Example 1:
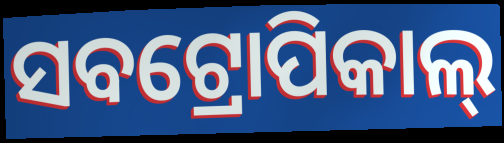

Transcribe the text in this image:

ସବଟ୍ରୋପିକାଲ୍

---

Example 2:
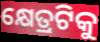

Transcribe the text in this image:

କ୍ଷେତ୍ରଟିକୁ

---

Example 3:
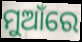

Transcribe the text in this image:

ମୁଆଁରେ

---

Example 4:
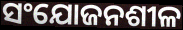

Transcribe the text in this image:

ସଂଯୋଜନଶୀଳ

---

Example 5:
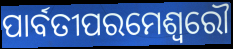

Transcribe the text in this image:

ପାର୍ବତୀପରମେଶ୍ଵରୌ